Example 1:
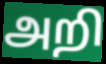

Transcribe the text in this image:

அறி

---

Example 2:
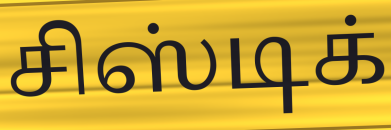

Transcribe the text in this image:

சிஸ்டிக்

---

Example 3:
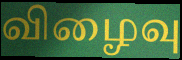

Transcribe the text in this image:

விழைவு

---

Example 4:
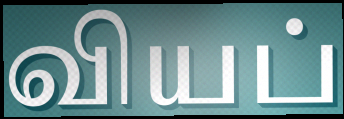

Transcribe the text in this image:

வியப்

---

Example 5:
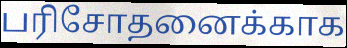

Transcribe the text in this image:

பரிசோதனைக்காக